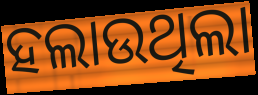
ହଲାଉଥିଲା